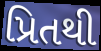
પ્રિતથી